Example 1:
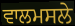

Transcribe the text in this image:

ਵਾਲਮਸਲੇ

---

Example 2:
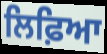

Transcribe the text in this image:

ਲਿਫ਼ਿਆ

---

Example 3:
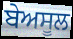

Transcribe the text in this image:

ਬੇਅਸੂਲ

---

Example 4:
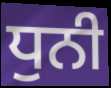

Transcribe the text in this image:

ਧੁਨੀ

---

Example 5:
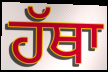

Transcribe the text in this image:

ਹੱਥਾ